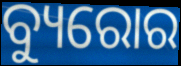
ବ୍ୟୁରୋର